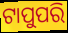
ଟାପୁପରି